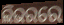
ଲିଭରରେ